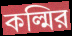
কল্মির